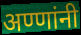
अण्णांनी